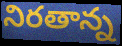
నిరతాన్న